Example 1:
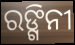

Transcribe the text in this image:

ରଙ୍ଗିନୀ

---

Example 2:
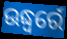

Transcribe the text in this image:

ଊଦ୍ଧ୍ୱର୍ରେ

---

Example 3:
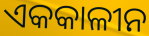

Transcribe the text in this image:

ଏକକାଳୀନ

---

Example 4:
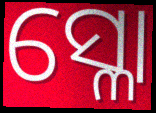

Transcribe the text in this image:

ସ୍ଳୋ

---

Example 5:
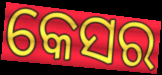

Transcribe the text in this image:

କେସର